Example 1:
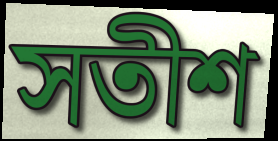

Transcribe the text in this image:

সতীশ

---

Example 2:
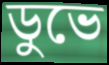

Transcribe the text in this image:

ডুভে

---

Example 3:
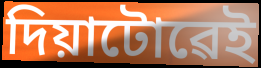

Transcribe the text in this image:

দিয়াটোৱেই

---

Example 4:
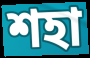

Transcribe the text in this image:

শহা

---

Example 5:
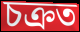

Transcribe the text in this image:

চক্ৰত